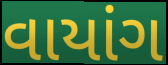
વાયાંગ